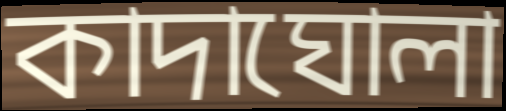
কাদাঘোলা